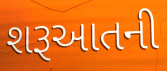
શરૂઆતની